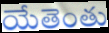
యేతెంతు